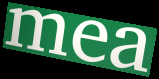
mea